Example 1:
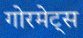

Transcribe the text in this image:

गोरमेट्स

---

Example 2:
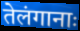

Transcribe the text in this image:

तेलंगानाः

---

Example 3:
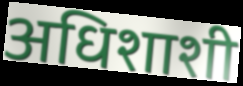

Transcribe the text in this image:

अधिशाशी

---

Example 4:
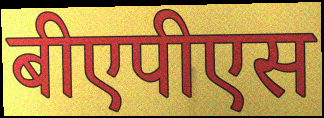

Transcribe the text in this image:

बीएपीएस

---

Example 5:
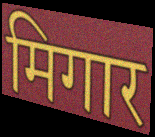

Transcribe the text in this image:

मिगार